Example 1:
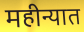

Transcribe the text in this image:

महीन्यात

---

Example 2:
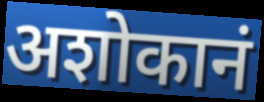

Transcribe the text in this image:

अशोकानं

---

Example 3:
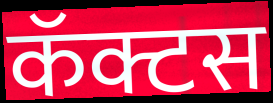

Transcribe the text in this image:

कॅक्टस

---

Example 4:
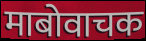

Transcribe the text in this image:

माबोवाचक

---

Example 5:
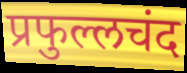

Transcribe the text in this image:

प्रफुल्लचंद